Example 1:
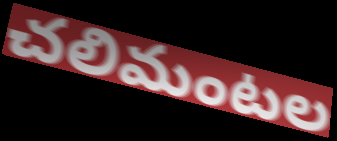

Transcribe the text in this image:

చలిమంటల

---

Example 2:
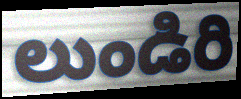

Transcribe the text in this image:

లుండిరి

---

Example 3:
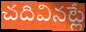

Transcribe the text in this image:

చదివినట్లే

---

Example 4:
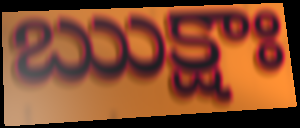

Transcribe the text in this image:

ఋక్షాః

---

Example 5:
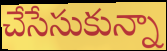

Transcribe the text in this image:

చేసేసుకున్నా